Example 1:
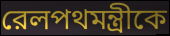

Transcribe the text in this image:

রেলপথমন্ত্রীকে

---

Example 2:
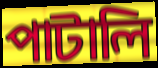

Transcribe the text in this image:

পাটালি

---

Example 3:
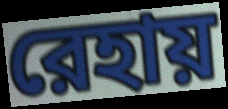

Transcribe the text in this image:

রেহায়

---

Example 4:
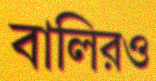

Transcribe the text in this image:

বালিরও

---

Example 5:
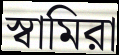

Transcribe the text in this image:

স্বামিরা